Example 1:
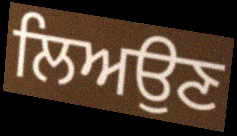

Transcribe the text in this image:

ਲਿਅਉਣ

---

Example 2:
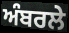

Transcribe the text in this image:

ਅੰਬਰਲੇ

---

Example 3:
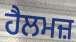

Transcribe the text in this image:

ਹੈਲਮਜ਼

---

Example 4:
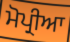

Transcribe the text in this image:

ਮੋਪ੍ਰੀਆ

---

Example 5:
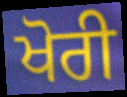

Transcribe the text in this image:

ਖੋਰੀ